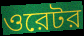
ওরেটর